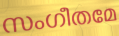
സംഗീതമേ